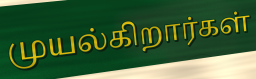
முயல்கிறார்கள்